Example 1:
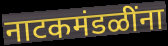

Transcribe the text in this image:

नाटकमंडळींना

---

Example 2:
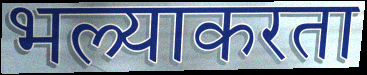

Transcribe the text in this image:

भल्याकरता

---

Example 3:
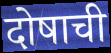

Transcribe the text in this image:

दोषाची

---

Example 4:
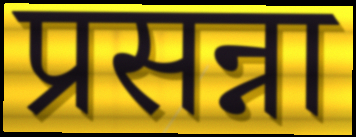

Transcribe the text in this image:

प्रसन्ना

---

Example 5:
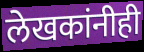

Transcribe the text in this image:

लेखकांनीही